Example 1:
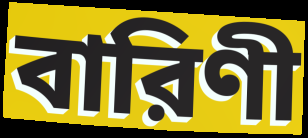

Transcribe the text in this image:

বারিণী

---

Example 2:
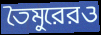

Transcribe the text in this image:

তৈমুরেরও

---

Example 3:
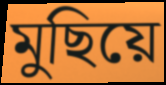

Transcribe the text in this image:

মুছিয়ে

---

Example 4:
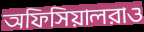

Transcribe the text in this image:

অফিসিয়ালরাও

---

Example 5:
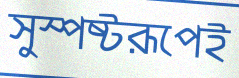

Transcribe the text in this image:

সুস্পষ্টরূপেই